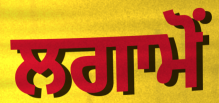
ਲਗਾਮੋਂ